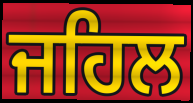
ਜਹਿਲ